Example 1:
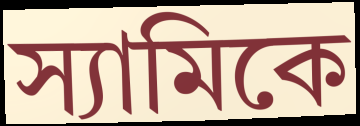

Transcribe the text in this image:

স্যামিকে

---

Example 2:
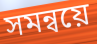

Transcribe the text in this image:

সমন্বয়ে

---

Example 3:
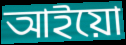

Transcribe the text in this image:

আইয়ো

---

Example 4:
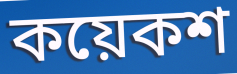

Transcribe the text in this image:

কয়েকশ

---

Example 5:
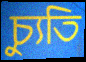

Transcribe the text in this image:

চ্যুতি